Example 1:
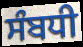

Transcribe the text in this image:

ਸੰਬਧੀ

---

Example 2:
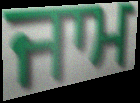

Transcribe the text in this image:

ਜਾਮ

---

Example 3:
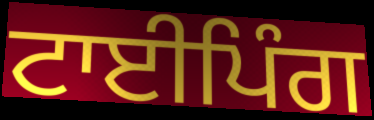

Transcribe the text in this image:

ਟਾਈਪਿੰਗ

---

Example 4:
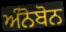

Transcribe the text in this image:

ਅੰਨੋਬੋਨ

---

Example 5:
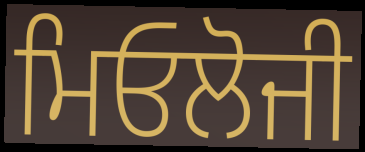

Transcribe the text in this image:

ਮਿਓਲੋਜੀ